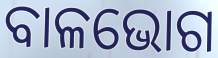
ବାଳଭୋଗ